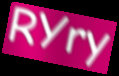
RYry